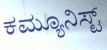
ಕಮ್ಯೂನಿಸ್ಟ್